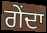
ਗੇਂਦਾ